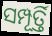
ସମ୍ପୂର୍ତ୍ତି